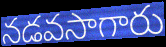
నడవసాగారు